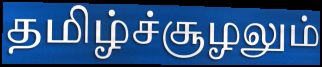
தமிழ்ச்சூழலும்